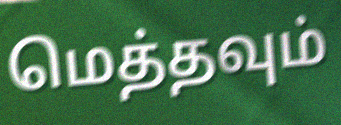
மெத்தவும்